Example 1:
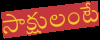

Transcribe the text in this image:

సాక్షులంటే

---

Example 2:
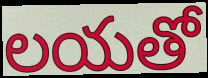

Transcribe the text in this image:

లయతో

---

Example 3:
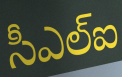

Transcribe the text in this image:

సీఎల్ఐ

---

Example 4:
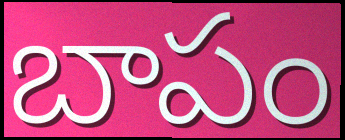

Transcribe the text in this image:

బాపం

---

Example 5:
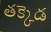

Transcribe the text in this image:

తక్కెడ